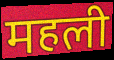
महली